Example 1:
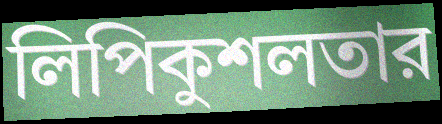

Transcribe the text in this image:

লিপিকুশলতার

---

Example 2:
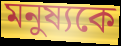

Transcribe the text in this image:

মনুষ্যকে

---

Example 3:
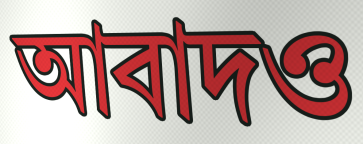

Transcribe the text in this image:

আবাদও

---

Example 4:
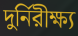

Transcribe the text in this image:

দুর্নিরীক্ষ্য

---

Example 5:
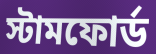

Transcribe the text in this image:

স্টামফোর্ড